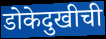
डोकेदुखीची